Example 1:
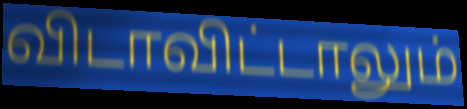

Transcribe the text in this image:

விடாவிட்டாலும்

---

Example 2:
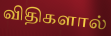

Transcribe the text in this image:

விதிகளால்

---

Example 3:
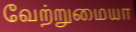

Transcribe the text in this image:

வேற்றுமையா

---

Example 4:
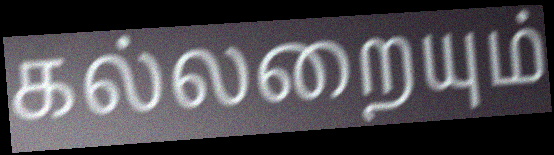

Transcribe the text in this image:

கல்லறையும்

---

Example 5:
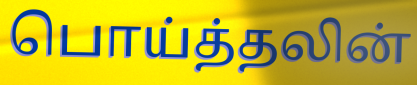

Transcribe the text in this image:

பொய்த்தலின்